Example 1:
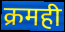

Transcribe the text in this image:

क्रमही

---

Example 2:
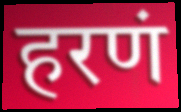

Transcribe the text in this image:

हरणं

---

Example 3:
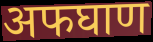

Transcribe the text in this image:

अफघाण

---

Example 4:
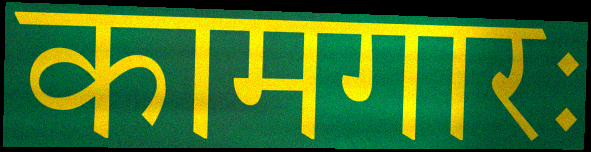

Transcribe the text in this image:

कामगारः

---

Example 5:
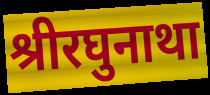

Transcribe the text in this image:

श्रीरघुनाथा